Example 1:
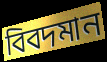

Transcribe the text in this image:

বিবদমান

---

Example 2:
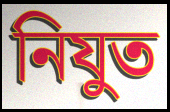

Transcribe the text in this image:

নিযুত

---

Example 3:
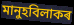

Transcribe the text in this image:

মানুহবিলাকৰ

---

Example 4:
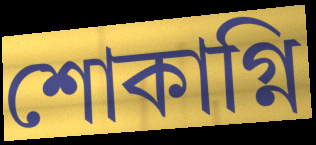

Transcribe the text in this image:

শোকাগ্নি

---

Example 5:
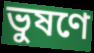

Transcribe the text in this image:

ভুষণে